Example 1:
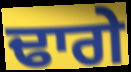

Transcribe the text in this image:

ਢਾਗੇ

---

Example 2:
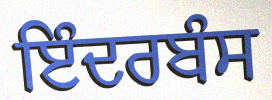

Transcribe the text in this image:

ਇੰਦਰਬੰਸ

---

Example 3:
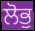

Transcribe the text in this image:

ਲੋਭੁ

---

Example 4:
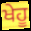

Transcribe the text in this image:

ਖੇਹੂ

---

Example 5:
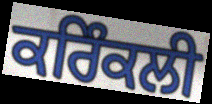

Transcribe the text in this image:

ਕਰਿੰਕਲੀ